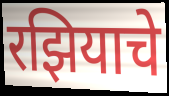
रझियाचे